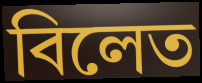
বিলেত